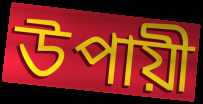
উপায়ী